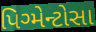
પિગ્મેન્ટોસા